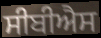
ਸੀਬੀਐਸ